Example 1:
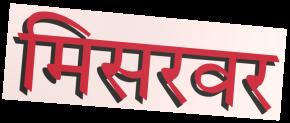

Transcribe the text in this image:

मिसरवर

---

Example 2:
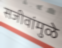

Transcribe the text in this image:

सजीवांमुळे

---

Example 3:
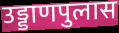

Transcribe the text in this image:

उड्डाणपुलास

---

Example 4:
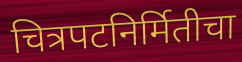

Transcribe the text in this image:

चित्रपटनिर्मितीचा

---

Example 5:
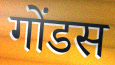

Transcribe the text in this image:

गोंडस